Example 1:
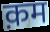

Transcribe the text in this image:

क़म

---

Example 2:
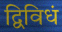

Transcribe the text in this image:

द्विविधं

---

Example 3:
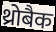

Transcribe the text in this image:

थ्रोबैक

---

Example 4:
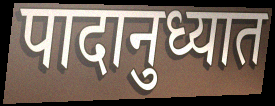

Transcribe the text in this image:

पादानुध्यात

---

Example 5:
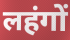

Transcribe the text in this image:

लहंगों